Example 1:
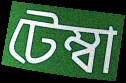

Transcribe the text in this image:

টেম্বা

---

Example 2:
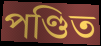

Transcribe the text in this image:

পণ্ডিত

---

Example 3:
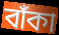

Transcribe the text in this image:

বাঁকা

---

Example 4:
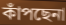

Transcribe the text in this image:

কাঁপছেনা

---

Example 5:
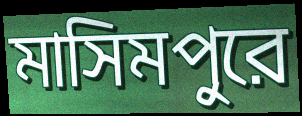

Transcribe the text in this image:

মাসিমপুরে